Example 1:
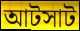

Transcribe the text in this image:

আটসাট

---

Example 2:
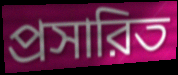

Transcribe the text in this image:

প্রসারিত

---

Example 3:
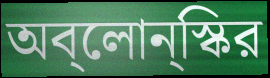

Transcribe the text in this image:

অব্‌লোন্‌স্কির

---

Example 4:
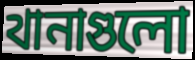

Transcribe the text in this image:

থানাগুলো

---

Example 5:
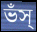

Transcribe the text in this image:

ভঁস্